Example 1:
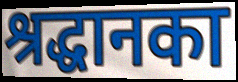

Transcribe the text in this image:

श्रद्धानका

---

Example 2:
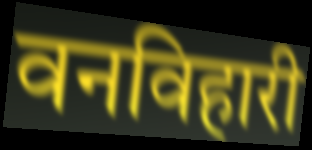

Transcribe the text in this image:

वनविहारी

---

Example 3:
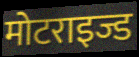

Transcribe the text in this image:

मोटराइज्ड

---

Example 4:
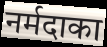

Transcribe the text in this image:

नर्मदाका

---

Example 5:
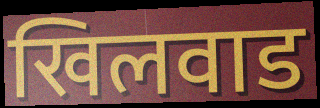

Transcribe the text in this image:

खिलवाड